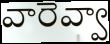
వారెవ్వా